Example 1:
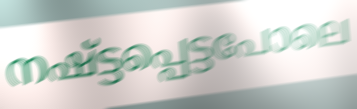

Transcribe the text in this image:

നഷ്ട്ടപ്പെട്ടപോലെ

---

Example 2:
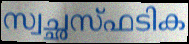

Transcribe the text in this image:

സ്വച്ഛസ്ഫടിക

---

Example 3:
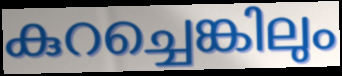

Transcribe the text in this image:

കുറച്ചെങ്കിലും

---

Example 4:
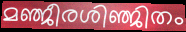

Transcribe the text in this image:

മഞ്ജീരശിഞ്ജിതം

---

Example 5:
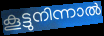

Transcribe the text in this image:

കൂട്ടുനിന്നാൽ